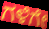
ಗಳಿಗೇ